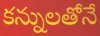
కన్నులతోనే